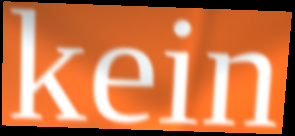
kein